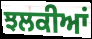
ਝਲਕੀਆਂ